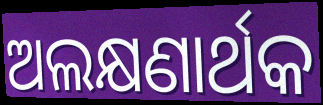
ଅଲକ୍ଷଣାର୍ଥକ